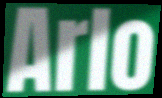
Arlo